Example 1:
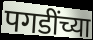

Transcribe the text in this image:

पगडींच्या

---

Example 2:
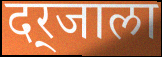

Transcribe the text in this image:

दर्जाला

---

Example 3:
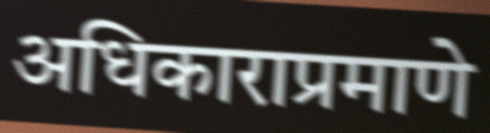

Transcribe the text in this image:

अधिकाराप्रमाणे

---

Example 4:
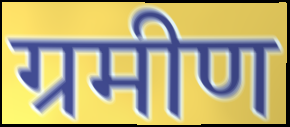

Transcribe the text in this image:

ग्रमीण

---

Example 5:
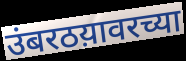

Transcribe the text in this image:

उंबरठय़ावरच्या